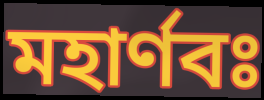
মহার্ণবঃ